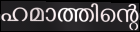
ഹമാത്തിന്റെ